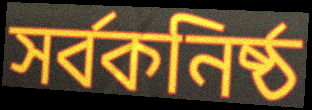
সর্বকনিষ্ঠ